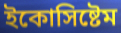
ইকোসিষ্টেম